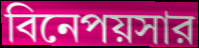
বিনেপয়সার